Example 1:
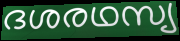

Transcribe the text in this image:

ദശരഥസ്യ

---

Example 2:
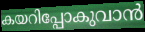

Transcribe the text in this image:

കയറിപ്പോകുവാൻ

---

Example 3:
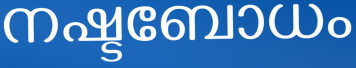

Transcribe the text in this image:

നഷ്ടബോധം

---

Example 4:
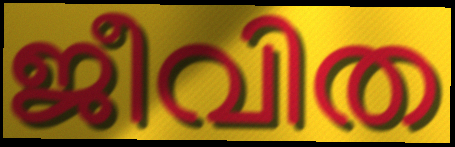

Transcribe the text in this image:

ജീവിത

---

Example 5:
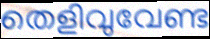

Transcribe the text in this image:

തെളിവുവേണ്ട